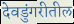
देवडुंगरीतील